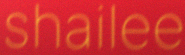
shailee